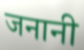
जनानी